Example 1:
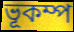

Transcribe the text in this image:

ভূকম্প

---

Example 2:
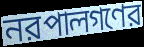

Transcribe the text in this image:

নরপালগণের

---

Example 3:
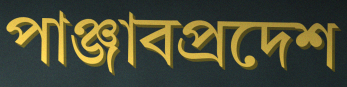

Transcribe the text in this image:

পাঞ্জাবপ্রদেশ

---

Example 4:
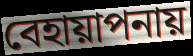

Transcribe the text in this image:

বেহায়াপনায়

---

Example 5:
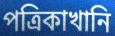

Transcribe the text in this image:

পত্রিকাখানি